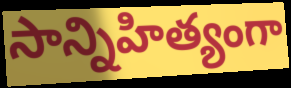
సాన్నిహిత్యంగా